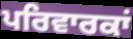
ਪਰਿਵਾਰਕਾਂ